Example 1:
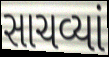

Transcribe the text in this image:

સાચવ્યાં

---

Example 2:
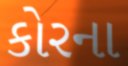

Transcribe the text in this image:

કોરના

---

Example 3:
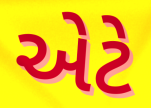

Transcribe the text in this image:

એટે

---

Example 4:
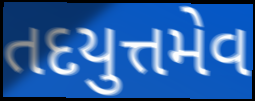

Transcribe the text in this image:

તદયુત્તમેવ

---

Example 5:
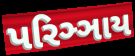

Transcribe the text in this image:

પરિઞ્ઞાય